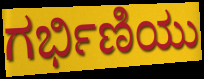
ಗರ್ಭಿಣಿಯು